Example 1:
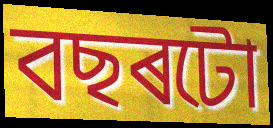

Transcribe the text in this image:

বছৰটো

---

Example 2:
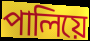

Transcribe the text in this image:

পালিয়ে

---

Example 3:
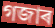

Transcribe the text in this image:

গজাৰ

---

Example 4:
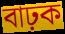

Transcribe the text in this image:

বাঢ়ক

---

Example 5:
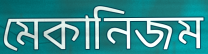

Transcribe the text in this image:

মেকানিজম